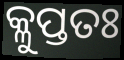
କ୍ଳୁପ୍ତତଃ